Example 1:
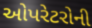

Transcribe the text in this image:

ઓપરેટરોની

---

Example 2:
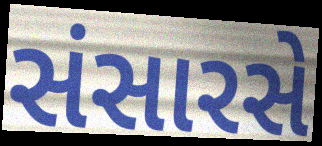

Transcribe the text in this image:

સંસારસે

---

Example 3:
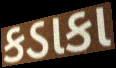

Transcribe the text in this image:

કડાકા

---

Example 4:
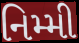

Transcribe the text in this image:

નિમ્મી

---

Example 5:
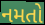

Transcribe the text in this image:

નમતો